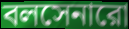
বলসেনারো